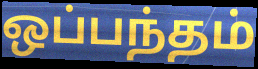
ஒப்பந்தம்